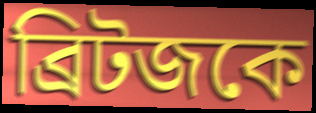
ব্রিটজকে